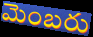
మెంబరు